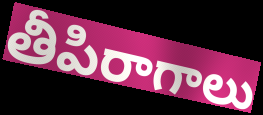
తీపిరాగాలు